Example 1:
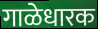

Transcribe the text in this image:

गाळेधारक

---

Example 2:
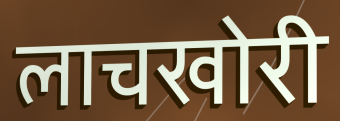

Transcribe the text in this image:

लाचखोरी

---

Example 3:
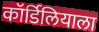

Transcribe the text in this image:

कॉर्डिलियाला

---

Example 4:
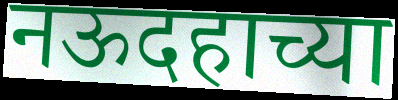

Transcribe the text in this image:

नऊदहाच्या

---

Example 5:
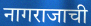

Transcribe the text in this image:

नागराजाची